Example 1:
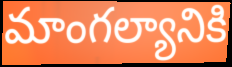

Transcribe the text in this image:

మాంగల్యానికి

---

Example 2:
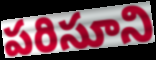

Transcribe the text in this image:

పరిసూని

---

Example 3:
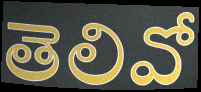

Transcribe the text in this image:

తెలివో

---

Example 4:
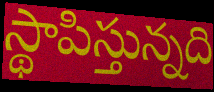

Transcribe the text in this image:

స్థాపిస్తున్నది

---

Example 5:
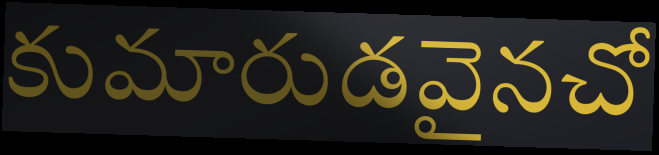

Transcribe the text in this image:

కుమారుడవైనచో